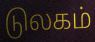
டுலகம்